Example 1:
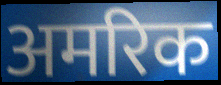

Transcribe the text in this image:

अमरिक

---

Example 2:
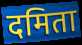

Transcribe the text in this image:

दमिता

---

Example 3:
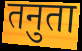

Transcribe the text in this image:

तनुता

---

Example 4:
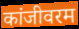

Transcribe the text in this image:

कांजीवरम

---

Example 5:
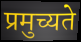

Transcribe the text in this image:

प्रमुच्यते